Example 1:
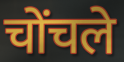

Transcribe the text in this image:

चोंचले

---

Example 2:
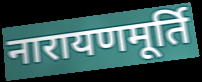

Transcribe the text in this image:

नारायणमूर्ति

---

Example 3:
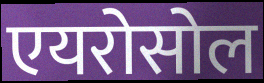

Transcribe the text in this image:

एयरोसोल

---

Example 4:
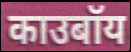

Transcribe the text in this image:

काउबॉय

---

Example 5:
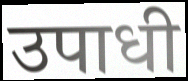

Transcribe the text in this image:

उपाधी